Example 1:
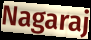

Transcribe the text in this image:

Nagaraj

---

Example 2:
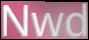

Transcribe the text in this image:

Nwd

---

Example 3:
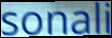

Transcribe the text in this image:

sonali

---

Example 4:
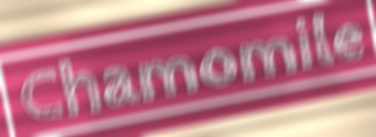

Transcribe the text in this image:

Chamomile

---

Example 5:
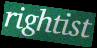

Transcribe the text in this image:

rightist